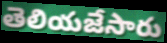
తెలియజేసారు